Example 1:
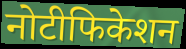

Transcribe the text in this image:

नोटीफिकेशन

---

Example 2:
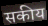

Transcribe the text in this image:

सकीय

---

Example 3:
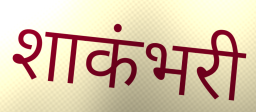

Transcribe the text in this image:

शाकंभरी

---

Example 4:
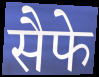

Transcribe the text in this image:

सैफे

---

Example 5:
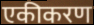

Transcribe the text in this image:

एकीकरण